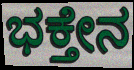
ಭಕ್ತೇನ